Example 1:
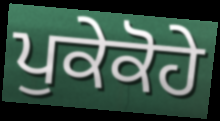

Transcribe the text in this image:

ਪੁਕੇਕੋਹੇ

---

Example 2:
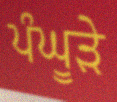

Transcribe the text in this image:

ਪੰਘੂੜੇ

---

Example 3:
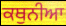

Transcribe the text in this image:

ਕਥੁਨੀਆ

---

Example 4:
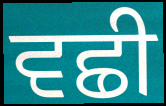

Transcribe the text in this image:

ਵਛੀ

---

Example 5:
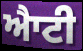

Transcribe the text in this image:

ਐਾਟੀ